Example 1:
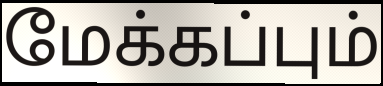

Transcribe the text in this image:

மேக்கப்பும்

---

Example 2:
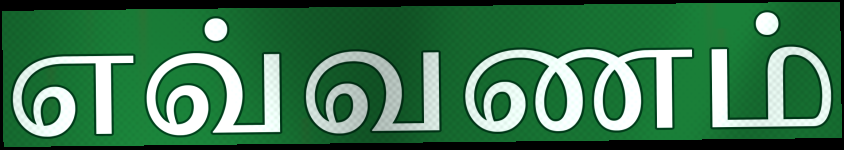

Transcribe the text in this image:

எவ்வணம்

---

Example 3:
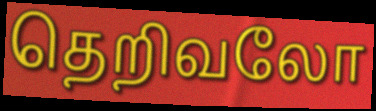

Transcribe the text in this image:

தெறிவலோ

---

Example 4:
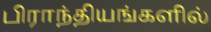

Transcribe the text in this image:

பிராந்தியங்களில்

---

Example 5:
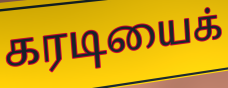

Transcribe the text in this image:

கரடியைக்